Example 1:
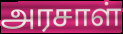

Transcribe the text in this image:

அரசாள்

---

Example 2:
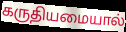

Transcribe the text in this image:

கருதியமையால்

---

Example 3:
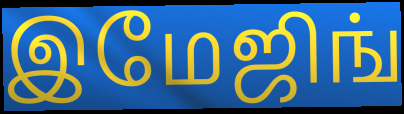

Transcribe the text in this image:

இமேஜிங்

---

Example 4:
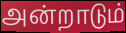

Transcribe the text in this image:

அன்றாடும்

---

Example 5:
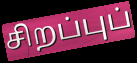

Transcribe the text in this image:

சிறப்புப்